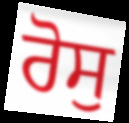
ਰੋਸੁ